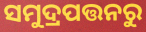
ସମୁଦ୍ରପତ୍ତନରୁ